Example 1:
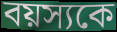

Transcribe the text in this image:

বয়স্যকে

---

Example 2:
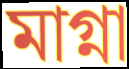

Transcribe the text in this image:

মাগ্না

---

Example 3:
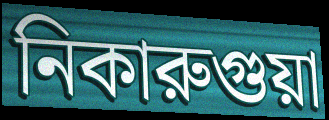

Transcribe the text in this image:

নিকারুগুয়া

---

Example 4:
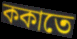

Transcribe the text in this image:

ককাতে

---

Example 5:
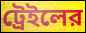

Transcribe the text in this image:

ট্রেইলের